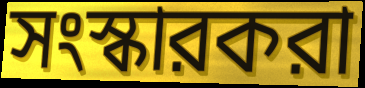
সংস্কারকরা